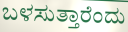
ಬಳಸುತ್ತಾರೆಂದು